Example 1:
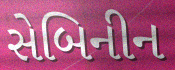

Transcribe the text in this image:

સેબિનીન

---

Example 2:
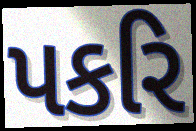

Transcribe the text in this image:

પકરિ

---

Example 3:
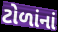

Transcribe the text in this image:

ટોળાંનાં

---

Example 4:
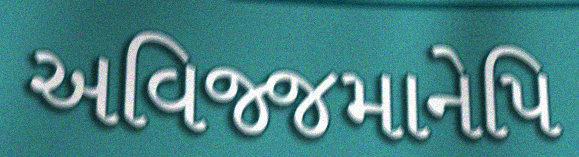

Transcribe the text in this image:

અવિજ્જમાનેપિ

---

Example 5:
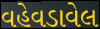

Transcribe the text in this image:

વહેવડાવેલ